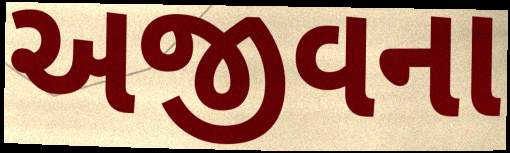
અજીવના